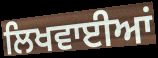
ਲਿਖਵਾਈਆਂ